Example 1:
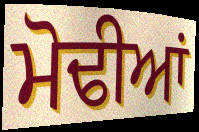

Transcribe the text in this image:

ਮੋਢੀਆਂ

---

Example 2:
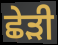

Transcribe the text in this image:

ਛੇੜੀ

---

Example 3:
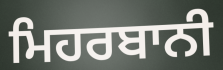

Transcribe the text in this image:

ਮਿਹਰਬਾਨੀ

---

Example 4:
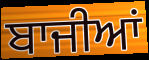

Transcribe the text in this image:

ਬਾਜੀਆਂ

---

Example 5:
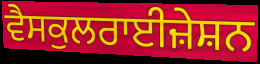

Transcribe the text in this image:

ਵੈਸਕੁਲਰਾਈਜ਼ੇਸ਼ਨ